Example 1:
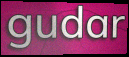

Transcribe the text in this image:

gudar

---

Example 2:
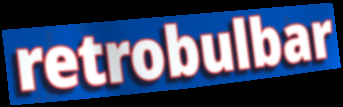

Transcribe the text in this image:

retrobulbar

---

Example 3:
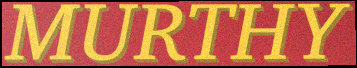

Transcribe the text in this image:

MURTHY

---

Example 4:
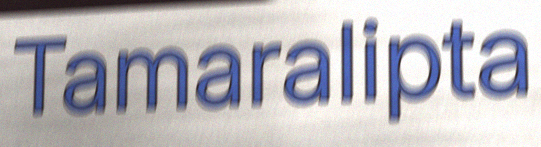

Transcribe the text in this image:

Tamaralipta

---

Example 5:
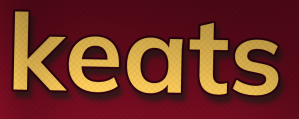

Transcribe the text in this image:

keats